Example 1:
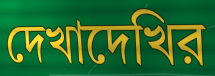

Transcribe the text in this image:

দেখাদেখির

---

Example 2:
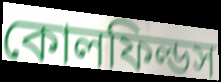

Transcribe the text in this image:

কোলফিল্ডস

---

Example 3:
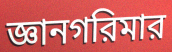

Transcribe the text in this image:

জ্ঞানগরিমার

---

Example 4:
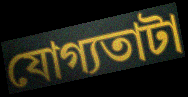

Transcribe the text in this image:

যোগ্যতাটা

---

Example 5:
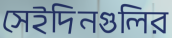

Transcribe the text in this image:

সেইদিনগুলির